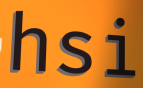
hsi